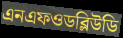
এনএফওডব্লিউডি